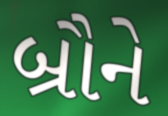
બ્રૌને